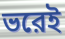
ভরেই